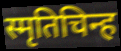
स्मृतिचिन्ह